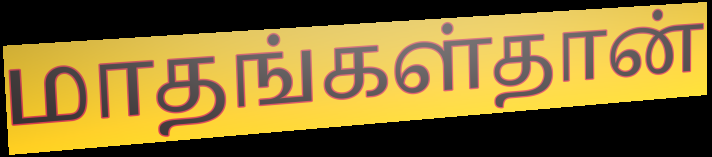
மாதங்கள்தான்